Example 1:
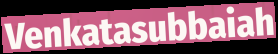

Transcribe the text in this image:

Venkatasubbaiah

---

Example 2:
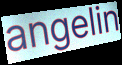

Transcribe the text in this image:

angelin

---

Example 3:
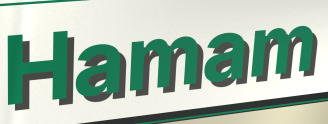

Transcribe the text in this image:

Hamam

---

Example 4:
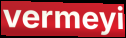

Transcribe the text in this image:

vermeyi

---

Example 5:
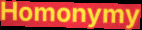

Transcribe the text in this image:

Homonymy